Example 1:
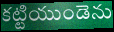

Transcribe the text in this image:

కట్టియుండెను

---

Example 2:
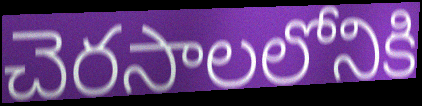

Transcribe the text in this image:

చెరసాలలోనికి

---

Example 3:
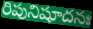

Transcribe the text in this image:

రిపునిషూదనః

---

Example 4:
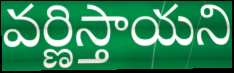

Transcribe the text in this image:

వర్ణిస్తాయని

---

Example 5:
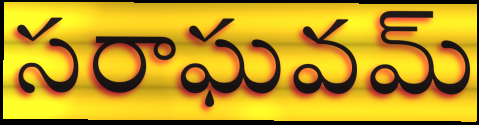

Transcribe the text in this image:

సరాఘవమ్